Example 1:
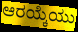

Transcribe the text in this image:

ಆರಯ್ಕೆಯು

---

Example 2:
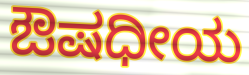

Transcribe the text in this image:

ಔಷಧೀಯ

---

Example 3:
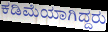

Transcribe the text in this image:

ಕಡಿಮೆಯಾಗಿದ್ದರು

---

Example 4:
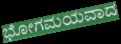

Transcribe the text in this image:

ಭೋಗಮಯವಾದ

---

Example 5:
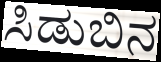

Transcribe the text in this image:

ಸಿಡುಬಿನ